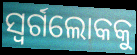
ସ୍ବର୍ଗଲୋକକୁ